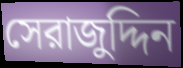
সেরাজুদ্দিন